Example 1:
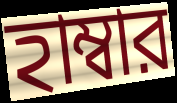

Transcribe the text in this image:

হাম্বার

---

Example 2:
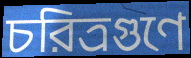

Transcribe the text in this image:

চরিত্রগুণে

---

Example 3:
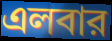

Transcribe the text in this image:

এলবার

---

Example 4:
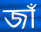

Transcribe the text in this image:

জাঁ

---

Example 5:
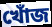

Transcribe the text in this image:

খোঁজ